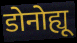
डोनोह्यू